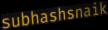
subhashsnaik